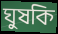
ঘুষকি